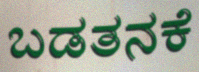
ಬಡತನಕೆ